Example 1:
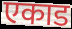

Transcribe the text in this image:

एकाड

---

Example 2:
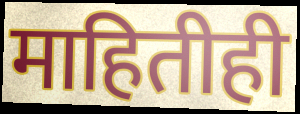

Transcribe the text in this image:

माहितीही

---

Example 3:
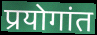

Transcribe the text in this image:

प्रयोगांत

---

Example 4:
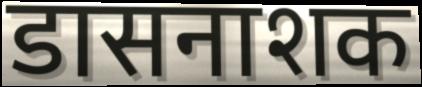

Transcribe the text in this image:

डासनाशक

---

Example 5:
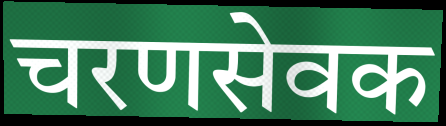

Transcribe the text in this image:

चरणसेवक